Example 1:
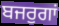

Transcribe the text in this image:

ਬਜਰੁਗਾਂ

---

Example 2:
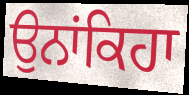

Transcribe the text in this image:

ਉਨਾਂਕਿਹਾ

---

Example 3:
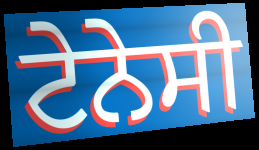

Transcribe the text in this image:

ਟੇਨੇਸੀ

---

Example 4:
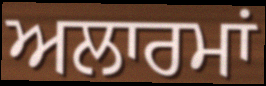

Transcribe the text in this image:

ਅਲਾਰਮਾਂ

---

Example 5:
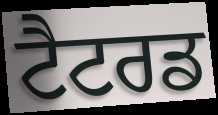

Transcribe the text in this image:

ਟੈਟਰਡ